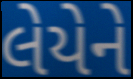
લેયેને